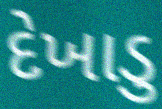
દેખાડુ